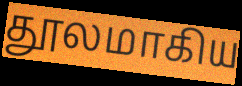
தூலமாகிய